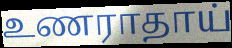
உணராதாய்